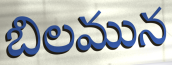
బిలమున